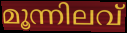
മൂന്നിലവ്